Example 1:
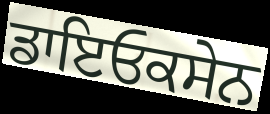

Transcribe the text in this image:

ਡਾਇਓਕਸੇਨ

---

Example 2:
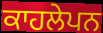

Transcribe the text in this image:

ਕਾਹਲੇਪਨ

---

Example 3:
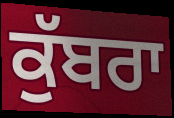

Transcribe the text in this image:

ਕੁੱਬਰਾ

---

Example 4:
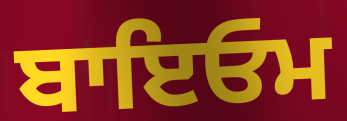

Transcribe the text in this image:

ਬਾਇਓਮ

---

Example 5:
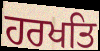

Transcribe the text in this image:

ਹਰਖਤਿ